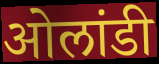
ओलांडी